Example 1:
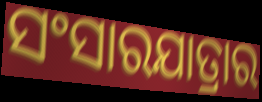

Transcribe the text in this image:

ସଂସାରଯାତ୍ରାର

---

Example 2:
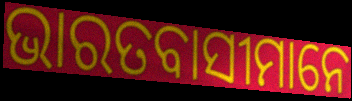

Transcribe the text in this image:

ଭାରତବାସୀମାନେ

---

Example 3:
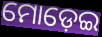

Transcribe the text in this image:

ମୋଡ଼େଇ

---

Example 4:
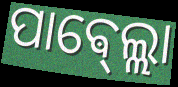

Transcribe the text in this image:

ପାଵ୍ଲ୍ଲୋ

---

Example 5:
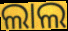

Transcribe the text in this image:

ଲାଲ